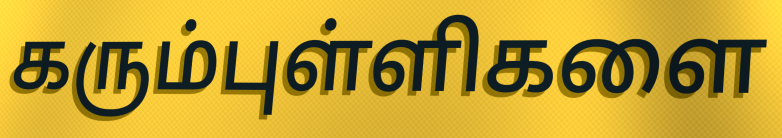
கரும்புள்ளிகளை